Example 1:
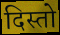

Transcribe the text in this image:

दिस्तो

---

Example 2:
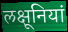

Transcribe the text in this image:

लक्षूनियां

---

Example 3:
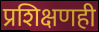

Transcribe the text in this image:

प्रशिक्षणही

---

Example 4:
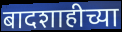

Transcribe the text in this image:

बादशाहीच्या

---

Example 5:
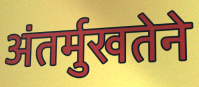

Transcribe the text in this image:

अंतर्मुखतेने